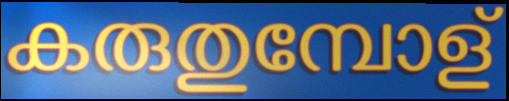
കരുതുമ്പോള്